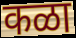
कळा